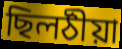
ছিলঠীয়া